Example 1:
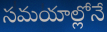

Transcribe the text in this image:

సమయాల్లోనే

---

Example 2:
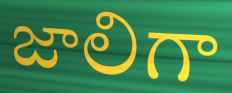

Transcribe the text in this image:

జాలిగా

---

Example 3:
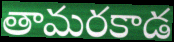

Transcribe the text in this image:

తామరకాడ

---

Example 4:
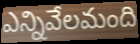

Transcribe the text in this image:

ఎన్నివేలమంది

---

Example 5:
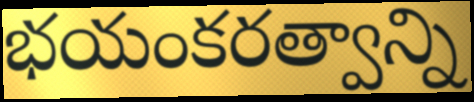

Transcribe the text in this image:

భయంకరత్వాన్ని